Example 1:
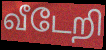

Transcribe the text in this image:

வீடேறி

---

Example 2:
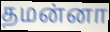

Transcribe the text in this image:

தமன்னா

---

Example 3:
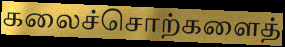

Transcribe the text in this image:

கலைச்சொற்களைத்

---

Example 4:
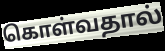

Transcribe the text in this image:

கொள்வதால்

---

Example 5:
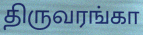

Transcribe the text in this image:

திருவரங்கா